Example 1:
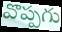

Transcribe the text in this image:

వొప్పగు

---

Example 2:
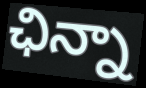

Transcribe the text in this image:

ఛిన్నా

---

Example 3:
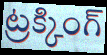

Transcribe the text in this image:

ట్రక్కింగ్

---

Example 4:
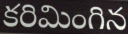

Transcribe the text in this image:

కరిమింగిన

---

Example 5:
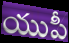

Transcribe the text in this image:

యుపీ